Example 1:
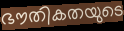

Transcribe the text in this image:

ഭൗതികതയുടെ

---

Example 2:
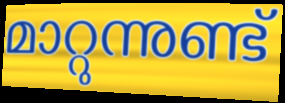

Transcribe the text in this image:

മാറ്റുന്നുണ്ട്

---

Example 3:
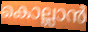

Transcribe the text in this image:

കൊല്ലാൻ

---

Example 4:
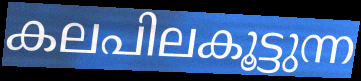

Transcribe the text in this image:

കലപിലകൂട്ടുന്ന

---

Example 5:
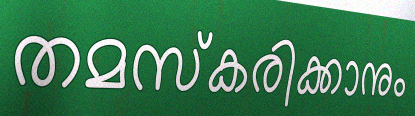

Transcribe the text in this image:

തമസ്കരിക്കാനും